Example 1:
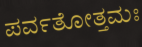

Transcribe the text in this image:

ಪರ್ವತೋತ್ತಮಃ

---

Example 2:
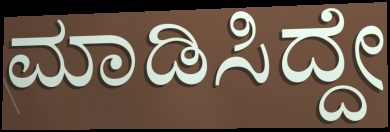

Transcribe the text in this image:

ಮಾಡಿಸಿದ್ದೇ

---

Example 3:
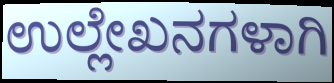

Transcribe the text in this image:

ಉಲ್ಲೇಖನಗಳಾಗಿ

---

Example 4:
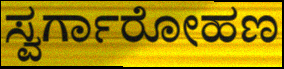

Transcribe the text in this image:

ಸ್ವರ್ಗಾರೋಹಣ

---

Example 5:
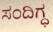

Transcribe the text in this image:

ಸಂದಿಗ್ಧ